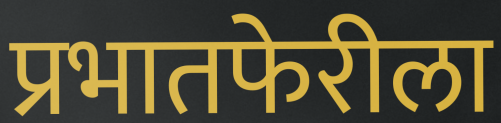
प्रभातफेरीला